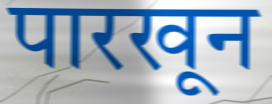
पारखून